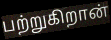
பற்றுகிறான்